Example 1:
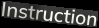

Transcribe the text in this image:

Instruction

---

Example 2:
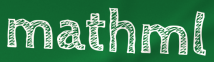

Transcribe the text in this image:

mathml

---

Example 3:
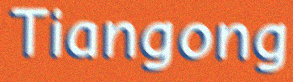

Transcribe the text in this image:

Tiangong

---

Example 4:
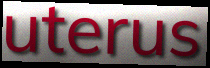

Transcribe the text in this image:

uterus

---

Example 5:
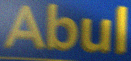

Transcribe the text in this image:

Abul